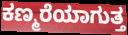
ಕಣ್ಮರೆಯಾಗುತ್ತ